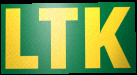
LTK